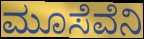
ಮೂಸೆವೆನಿ